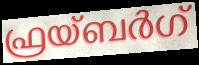
ഫ്രയ്ബർഗ്